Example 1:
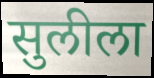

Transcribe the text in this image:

सुलीला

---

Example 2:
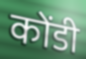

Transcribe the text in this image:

कोंडी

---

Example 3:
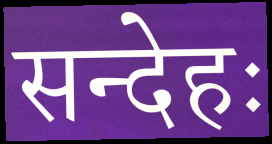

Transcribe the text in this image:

सन्देहः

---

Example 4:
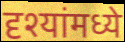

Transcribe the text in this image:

दृश्यांमध्ये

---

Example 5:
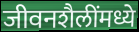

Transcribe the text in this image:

जीवनशैलींमध्ये